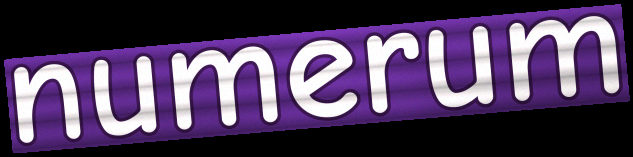
numerum